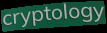
cryptology